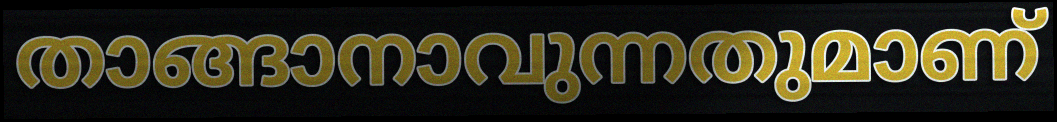
താങ്ങാനാവുന്നതുമാണ്